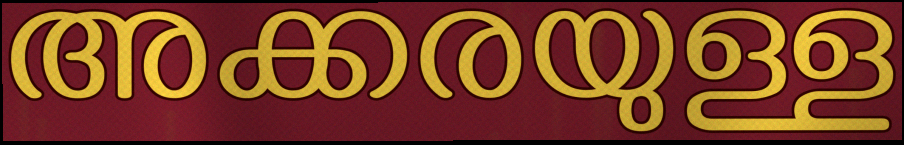
അക്കരയുള്ള